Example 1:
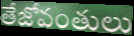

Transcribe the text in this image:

తేజోవంతులు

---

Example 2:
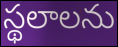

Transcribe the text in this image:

స్థలాలను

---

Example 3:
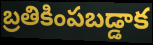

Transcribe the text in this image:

బ్రతికింపబడ్డాక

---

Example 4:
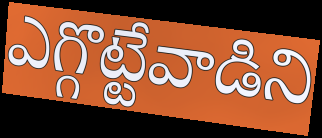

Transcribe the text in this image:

ఎగ్గొట్టేవాడిని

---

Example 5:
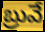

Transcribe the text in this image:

బ్రువే